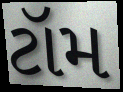
ટૉમ